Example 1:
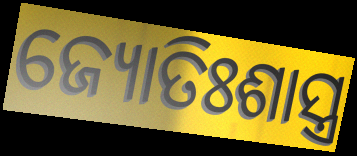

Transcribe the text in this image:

ଜ୍ୟୋତିଃଶାସ୍ତ୍ର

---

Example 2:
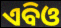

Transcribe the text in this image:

ଏବିଓ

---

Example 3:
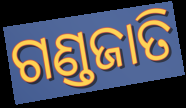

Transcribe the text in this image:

ଗଣ୍ଡଜାତି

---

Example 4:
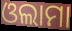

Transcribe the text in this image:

ଓଲାମା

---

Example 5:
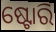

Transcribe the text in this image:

ଷ୍ଟୋରି